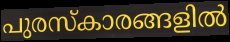
പുരസ്കാരങ്ങളിൽ